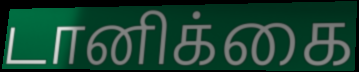
டானிக்கை